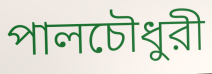
পালচৌধুরী